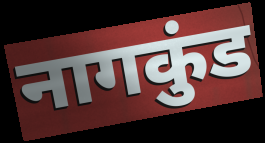
नागकुंड